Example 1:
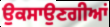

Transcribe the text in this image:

ਉਕਸਾਉਣਗੀਆਂ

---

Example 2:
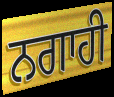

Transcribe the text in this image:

ਨਗਾਹੀ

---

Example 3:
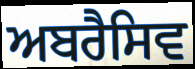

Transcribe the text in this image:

ਅਬਰੈਸਿਵ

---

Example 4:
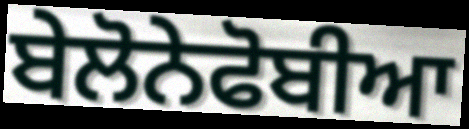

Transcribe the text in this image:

ਬੇਲੋਨੇਫੋਬੀਆ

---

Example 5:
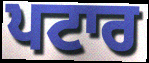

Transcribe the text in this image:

ਪਟਾਰ